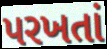
પરખતાં